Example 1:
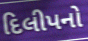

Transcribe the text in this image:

દિલીપનો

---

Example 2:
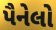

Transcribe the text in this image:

પૈનેલો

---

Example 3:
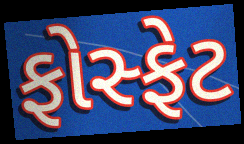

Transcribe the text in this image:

ફોસ્ફેટ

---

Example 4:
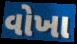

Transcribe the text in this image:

વોખા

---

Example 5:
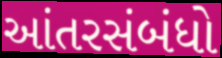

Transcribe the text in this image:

આંતરસંબંધો